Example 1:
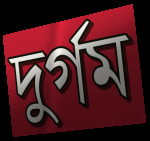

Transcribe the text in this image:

দুর্গম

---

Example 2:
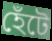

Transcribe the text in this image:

হেঁটে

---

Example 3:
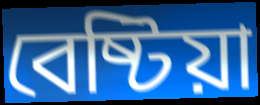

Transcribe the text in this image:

বেষ্টিয়া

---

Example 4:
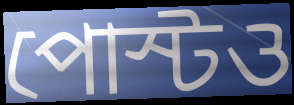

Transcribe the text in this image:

পোস্টও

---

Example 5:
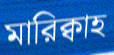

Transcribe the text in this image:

মারিক্বাহ